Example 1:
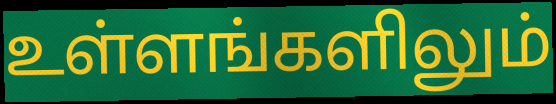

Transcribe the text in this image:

உள்ளங்களிலும்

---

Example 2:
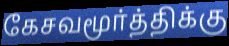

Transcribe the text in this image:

கேசவமூர்த்திக்கு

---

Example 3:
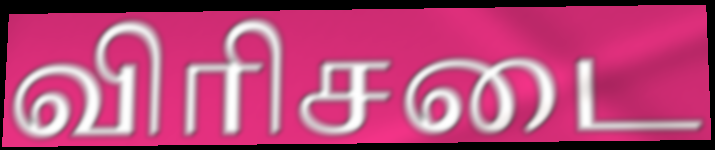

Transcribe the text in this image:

விரிசடை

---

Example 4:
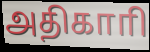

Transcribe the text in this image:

அதிகாரி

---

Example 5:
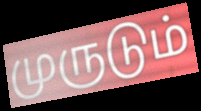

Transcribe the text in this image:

முருடும்